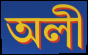
অলী